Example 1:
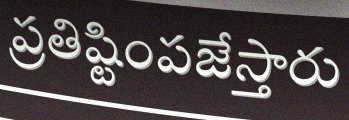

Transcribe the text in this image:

ప్రతిష్టింపజేస్తారు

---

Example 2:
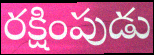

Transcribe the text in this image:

రక్షింపుడు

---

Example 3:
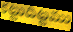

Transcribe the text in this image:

కట్టుదిట్టము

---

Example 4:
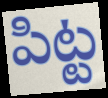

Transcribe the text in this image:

పిట్ట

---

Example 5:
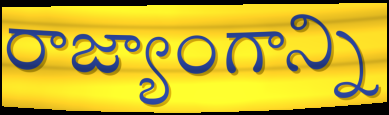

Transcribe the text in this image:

రాజ్యాంగాన్ని